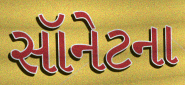
સૉનેટના